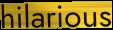
hilarious